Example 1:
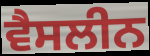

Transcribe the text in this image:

ਵੈਸਲੀਨ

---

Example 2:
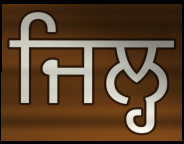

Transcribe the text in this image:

ਜਿਲ੍ਹ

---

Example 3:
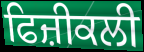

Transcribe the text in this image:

ਫਿਜ਼ੀਕਲੀ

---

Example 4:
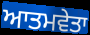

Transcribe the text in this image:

ਆਤਮਵੇਤਾ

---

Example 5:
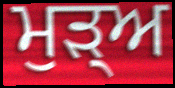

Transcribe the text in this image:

ਮੁਡ਼੍ਅ